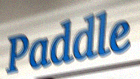
Paddle